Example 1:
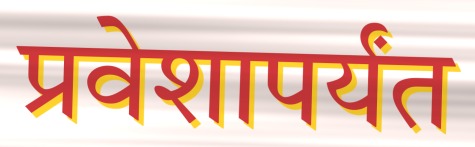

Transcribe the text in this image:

प्रवेशापर्यंत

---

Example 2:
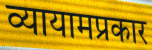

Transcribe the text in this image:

व्यायामप्रकार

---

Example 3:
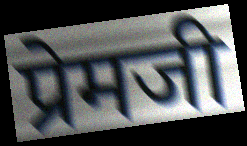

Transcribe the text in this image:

प्रेमजी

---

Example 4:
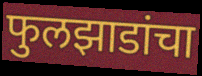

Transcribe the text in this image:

फुलझाडांचा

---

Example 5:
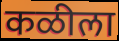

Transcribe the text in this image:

कळीला